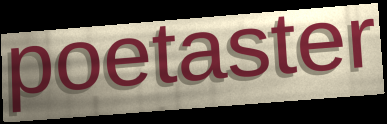
poetaster